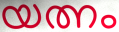
യത്നം